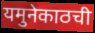
यमुनेकाठची